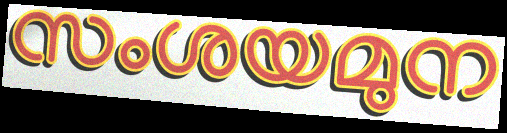
സംശയമുന